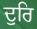
ਦੁਰਿ